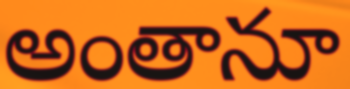
అంతానూ